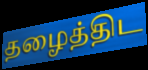
தழைத்திட